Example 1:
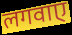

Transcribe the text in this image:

लगवाए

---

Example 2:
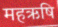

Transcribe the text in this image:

महऋषि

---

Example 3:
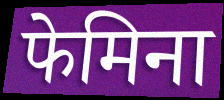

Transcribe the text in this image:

फेमिना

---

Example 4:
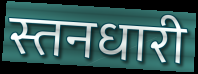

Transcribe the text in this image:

स्‍तनधारी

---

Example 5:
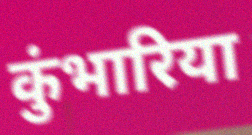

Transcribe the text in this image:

कुंभारिया